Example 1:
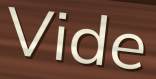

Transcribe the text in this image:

Vide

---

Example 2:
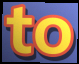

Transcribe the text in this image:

to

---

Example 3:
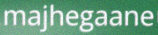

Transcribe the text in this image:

majhegaane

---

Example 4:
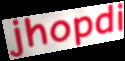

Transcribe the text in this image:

jhopdi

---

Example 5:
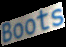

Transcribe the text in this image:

Boots